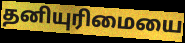
தனியுரிமையை